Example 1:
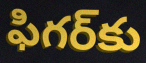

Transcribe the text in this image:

ఫిగర్‌కు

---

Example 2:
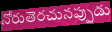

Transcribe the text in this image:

నోరుతెరచునప్పుడు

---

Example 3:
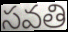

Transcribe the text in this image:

సవతి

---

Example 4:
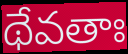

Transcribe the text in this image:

థేవతాః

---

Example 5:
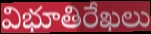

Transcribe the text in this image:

విభూతిరేఖలు